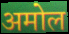
अमोल